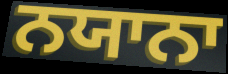
ਨਯਾਨਾ